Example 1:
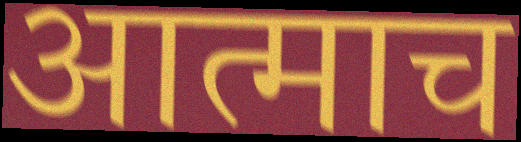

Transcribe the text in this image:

आत्माच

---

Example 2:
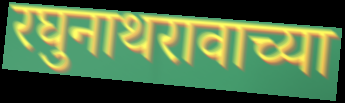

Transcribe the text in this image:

रघुनाथरावाच्या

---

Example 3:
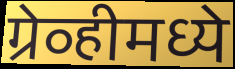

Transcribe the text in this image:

ग्रेव्हीमध्ये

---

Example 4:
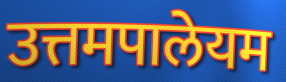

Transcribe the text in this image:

उत्तमपालेयम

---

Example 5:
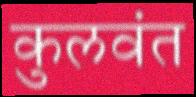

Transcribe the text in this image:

कुलवंत